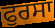
ਫੁਰਸਾ